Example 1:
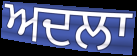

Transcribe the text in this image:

ਅਦਲਾ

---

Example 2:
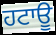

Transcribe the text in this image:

ਹਟਾਊ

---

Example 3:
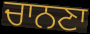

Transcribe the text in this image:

ਚਾਨਣਾ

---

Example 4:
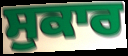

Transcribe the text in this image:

ਸੁਕਾਰ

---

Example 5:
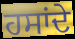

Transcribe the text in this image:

ਹਸਾਂਦੇ